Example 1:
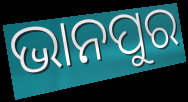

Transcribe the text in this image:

ଭାନପୁର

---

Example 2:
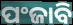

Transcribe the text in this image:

ପଂଜାବି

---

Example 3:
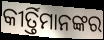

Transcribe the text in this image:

କୀର୍ତ୍ତିମାନଙ୍କର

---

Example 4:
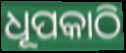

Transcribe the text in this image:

ଧୂପକାଠି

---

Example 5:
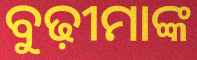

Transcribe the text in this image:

ବୁଢ଼ୀମାଙ୍କ